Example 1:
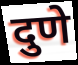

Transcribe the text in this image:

दुणे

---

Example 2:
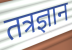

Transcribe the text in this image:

तत्रज्ञान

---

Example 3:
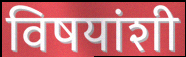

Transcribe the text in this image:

विषयांशी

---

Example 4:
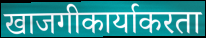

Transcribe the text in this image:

खाजगीकार्याकरता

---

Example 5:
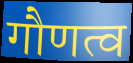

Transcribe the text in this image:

गौणत्व